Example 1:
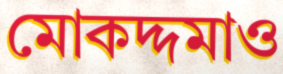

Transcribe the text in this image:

মোকদ্দমাও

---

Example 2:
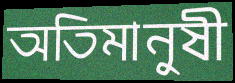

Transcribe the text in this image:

অতিমানুষী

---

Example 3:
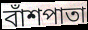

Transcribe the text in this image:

বাঁশপাতা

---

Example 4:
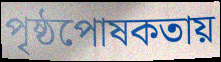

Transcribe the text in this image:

পৃষ্ঠপোষকতায়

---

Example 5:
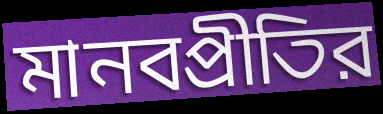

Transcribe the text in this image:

মানবপ্রীতির